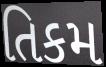
તિકમ